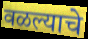
वळल्याचे